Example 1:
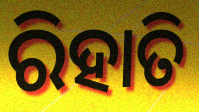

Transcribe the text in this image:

ରିହାତି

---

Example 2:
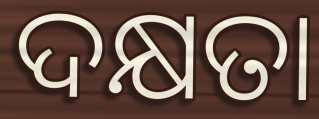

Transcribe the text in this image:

ଦକ୍ଷତା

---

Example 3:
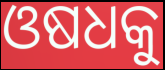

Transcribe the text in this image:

ଓଷଧକୁ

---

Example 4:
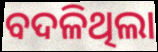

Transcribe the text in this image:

ବଦଳିଥିଲା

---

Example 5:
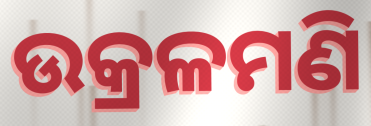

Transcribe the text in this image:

ଉକ୍ରଳମଣି